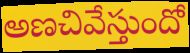
అణచివేస్తుందో